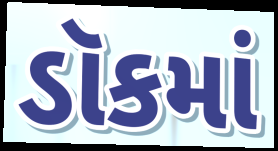
ડૉકમાં